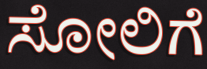
ಸೋಲಿಗೆ